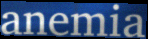
anemia